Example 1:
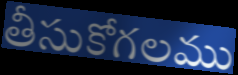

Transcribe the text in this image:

తీసుకోగలము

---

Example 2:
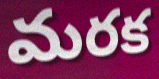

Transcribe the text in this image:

మరక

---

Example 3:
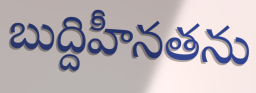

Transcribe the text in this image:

బుద్దిహీనతను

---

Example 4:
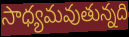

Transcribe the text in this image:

సాధ్యమవుతున్నది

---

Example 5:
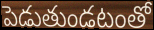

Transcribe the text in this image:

పెడుతుండటంతో